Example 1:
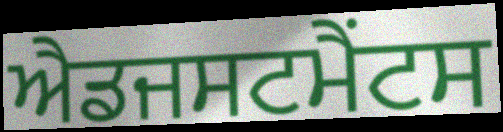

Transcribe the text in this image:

ਐਡਜਸਟਮੈਂਟਸ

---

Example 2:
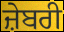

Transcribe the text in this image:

ਜ਼ੇਬਰੀ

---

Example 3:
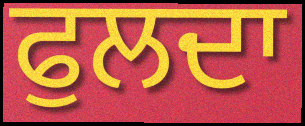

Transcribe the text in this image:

ਫੁਲਦਾ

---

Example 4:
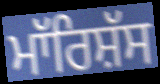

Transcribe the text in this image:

ਮਾੱਰਿਸ਼ੱਸ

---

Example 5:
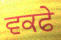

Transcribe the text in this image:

ਵਕਫੇ